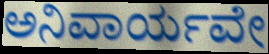
ಅನಿವಾರ್ಯವೇ